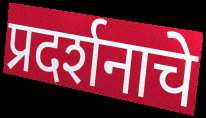
प्रदर्शनाचे